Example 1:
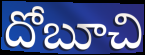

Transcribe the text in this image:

దోబూచి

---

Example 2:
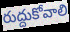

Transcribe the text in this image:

రుద్దుకోవాలి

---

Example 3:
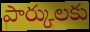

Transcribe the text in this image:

పార్కులకు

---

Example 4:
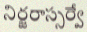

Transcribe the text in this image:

నిర్జరాస్సర్వే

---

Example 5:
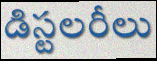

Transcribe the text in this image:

డిస్టలరీలు